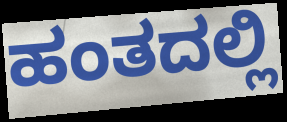
ಹಂತದಲ್ಲಿ